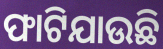
ଫାଟିଯାଉଛି